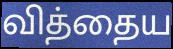
வித்தைய